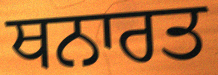
ਥਨਾਰਤ